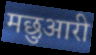
मछुआरी